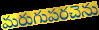
మరుగుపరచెను